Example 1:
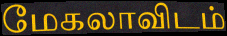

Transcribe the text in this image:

மேகலாவிடம்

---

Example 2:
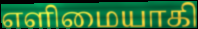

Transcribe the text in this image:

எளிமையாகி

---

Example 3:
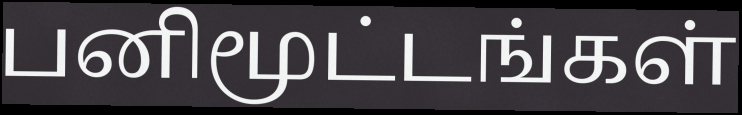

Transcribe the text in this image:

பனிமூட்டங்கள்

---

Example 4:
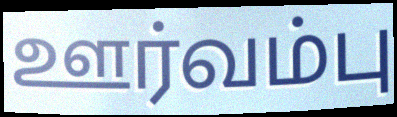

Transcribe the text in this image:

ஊர்வம்பு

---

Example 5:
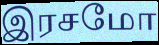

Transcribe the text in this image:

இரசமோ